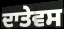
ਦਾਤੇਵਸ